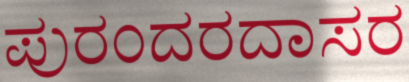
ಪುರಂದರದಾಸರ